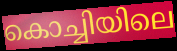
കൊച്ചിയിലെ